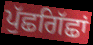
ਪੁੱਛਗਿੱਛਾਂ